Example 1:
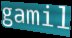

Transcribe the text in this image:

gamil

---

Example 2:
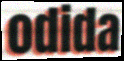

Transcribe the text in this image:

odida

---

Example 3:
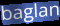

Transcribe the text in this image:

baglan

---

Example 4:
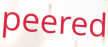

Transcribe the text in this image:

peered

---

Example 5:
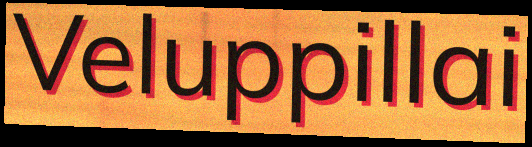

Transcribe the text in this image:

Veluppillai